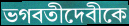
ভগবতীদেবীকে